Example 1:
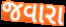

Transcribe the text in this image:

જવારા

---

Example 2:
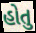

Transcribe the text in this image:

હોતુ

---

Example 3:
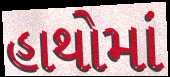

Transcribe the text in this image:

હાથોમાં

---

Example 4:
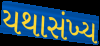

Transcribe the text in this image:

યથાસંખ્ય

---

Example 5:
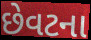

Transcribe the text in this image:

છેવટના